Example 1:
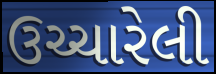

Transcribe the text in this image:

ઉચ્ચારેલી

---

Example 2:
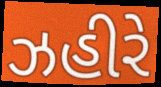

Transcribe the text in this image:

ઝહીરે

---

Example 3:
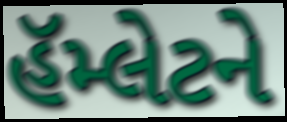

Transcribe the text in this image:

હૅમ્લેટને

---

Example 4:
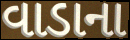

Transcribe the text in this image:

વાડાના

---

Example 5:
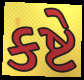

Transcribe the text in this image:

કષ્ટે